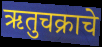
ऋतुचक्राचे